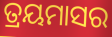
ତ୍ରୟମାସର